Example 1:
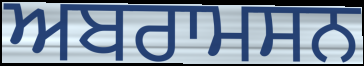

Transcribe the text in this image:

ਅਬਰਾਮਸਨ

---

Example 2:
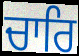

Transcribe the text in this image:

ਚਾਰਿ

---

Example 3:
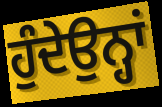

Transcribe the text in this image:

ਹੁੰਦੇਉਨ੍ਹਾਂ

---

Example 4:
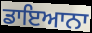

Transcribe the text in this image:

ਡਾਇਆਨਾ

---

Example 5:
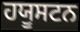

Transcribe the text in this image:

ਹਯੂਸਟਨ